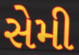
સેમી